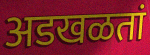
अडखळतां